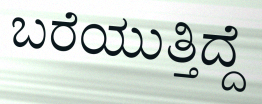
ಬರೆಯುತ್ತಿದ್ದೆ